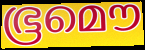
ഭൂമൌ